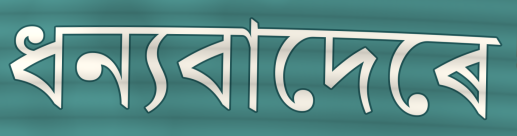
ধন্যবাদেৰে